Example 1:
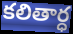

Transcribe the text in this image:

కలితార్ధ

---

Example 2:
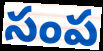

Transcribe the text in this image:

సంప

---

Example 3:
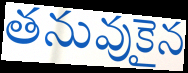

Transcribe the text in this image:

తనువుకైన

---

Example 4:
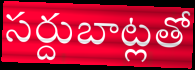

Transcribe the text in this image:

సర్దుబాట్లతో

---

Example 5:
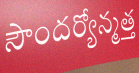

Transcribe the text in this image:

సౌందర్యోన్మత్త